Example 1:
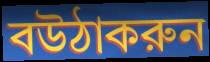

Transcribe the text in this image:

বউঠাকরুন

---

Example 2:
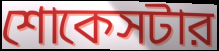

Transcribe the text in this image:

শোকেসটার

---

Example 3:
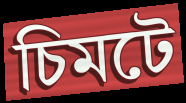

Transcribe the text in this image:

চিমটে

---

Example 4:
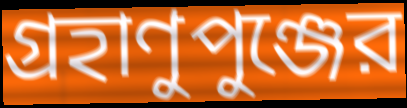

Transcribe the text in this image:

গ্রহাণুপুঞ্জের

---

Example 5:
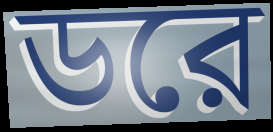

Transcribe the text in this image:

ডরে